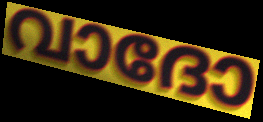
വാദോ